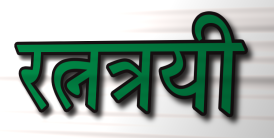
रत्नत्रयी